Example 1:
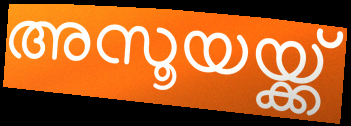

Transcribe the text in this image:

അസൂയയ്ക്ക്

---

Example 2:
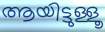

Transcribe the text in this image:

ആയിട്ടുള്ളൂ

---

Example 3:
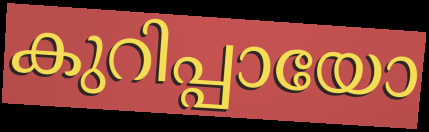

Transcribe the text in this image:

കുറിപ്പായോ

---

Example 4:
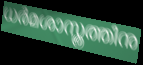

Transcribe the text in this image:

ധർമശാസ്ത്രത്തിനു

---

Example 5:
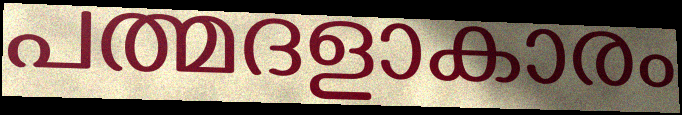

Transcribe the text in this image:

പത്മദളാകാരം